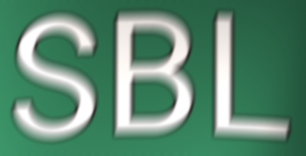
SBL